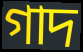
গাদ